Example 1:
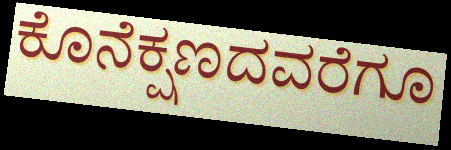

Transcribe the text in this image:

ಕೊನೆಕ್ಷಣದವರೆಗೂ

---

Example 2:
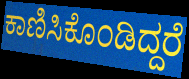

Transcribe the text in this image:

ಕಾಣಿಸಿಕೊಂಡಿದ್ದರೆ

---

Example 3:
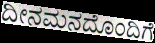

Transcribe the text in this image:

ದೀನಮನದೊಂದಿಗೆ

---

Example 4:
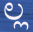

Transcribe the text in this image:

ಲ್ಲ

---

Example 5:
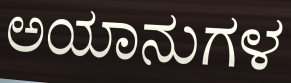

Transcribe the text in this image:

ಅಯಾನುಗಳ